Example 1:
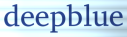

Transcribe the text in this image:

deepblue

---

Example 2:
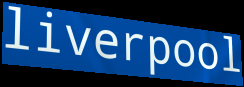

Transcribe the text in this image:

liverpool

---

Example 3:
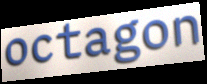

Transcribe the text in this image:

octagon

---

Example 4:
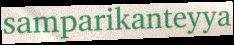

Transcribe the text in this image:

samparikanteyya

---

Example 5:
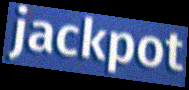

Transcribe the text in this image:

jackpot